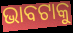
ଭାବଟାକୁ